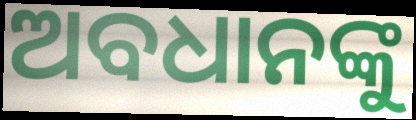
ଅବଧାନଙ୍କୁ